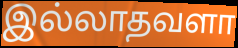
இல்லாதவளா